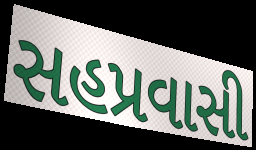
સહપ્રવાસી